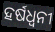
ହର୍ଷଧ୍ୱନୀ